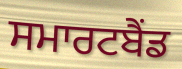
ਸਮਾਰਟਬੈਂਡ